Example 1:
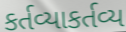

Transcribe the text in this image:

કર્તવ્યાકર્તવ્ય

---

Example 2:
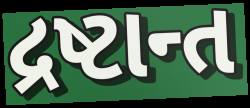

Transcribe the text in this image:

દ્રષ્ટાન્ત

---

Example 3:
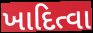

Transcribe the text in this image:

ખાદિત્વા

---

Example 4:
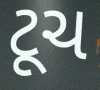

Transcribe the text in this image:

ટૂચ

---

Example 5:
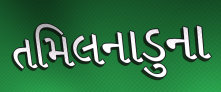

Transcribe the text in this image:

તમિલનાડુના